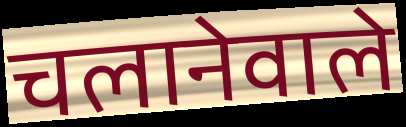
चलानेवाले